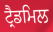
ਟ੍ਰੈਡਮਿਲ